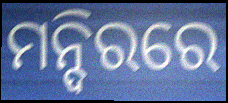
ମନ୍ଦିରରେ